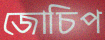
জোচিপ